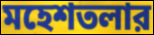
মহেশতলার